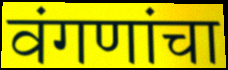
वंगणांचा